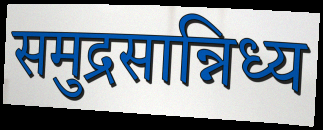
समुद्रसान्निध्य